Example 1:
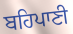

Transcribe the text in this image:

ਬਹਿਪਾਣੀ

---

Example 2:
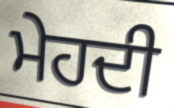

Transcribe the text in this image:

ਮੇਹਦੀ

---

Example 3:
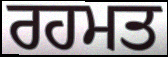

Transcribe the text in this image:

ਰਹਮਤ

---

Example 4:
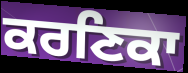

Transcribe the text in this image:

ਕਰਣਿਕਾ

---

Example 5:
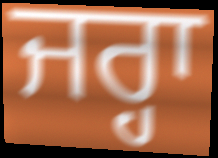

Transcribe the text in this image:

ਜਰ੍ਹਾ